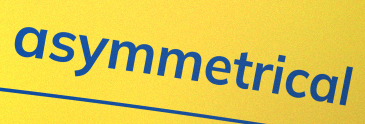
asymmetrical